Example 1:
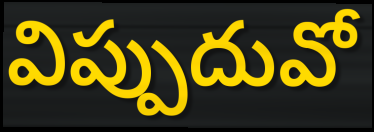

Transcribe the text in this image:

విప్పుదువో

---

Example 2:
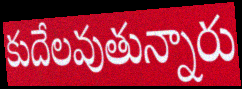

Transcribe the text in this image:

కుదేలవుతున్నారు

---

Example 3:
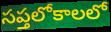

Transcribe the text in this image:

సప్తలోకాలలో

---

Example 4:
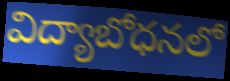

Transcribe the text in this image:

విద్యాబోధనలో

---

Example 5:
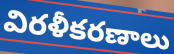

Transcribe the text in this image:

విరళీకరణాలు